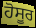
ਹੋਸੂਰ